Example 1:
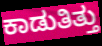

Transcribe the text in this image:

ಕಾಡುತಿತ್ತು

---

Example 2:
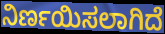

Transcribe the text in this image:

ನಿರ್ಣಯಿಸಲಾಗಿದೆ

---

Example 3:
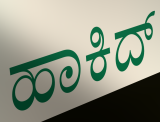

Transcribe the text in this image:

ಹಾಕಿದ್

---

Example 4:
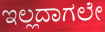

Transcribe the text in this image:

ಇಲ್ಲದಾಗಲೇ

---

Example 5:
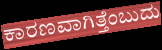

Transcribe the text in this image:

ಕಾರಣವಾಗಿತ್ತೆಂಬುದು